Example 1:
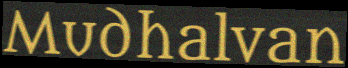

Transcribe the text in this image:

Mudhalvan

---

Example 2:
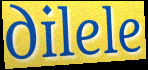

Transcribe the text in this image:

dilele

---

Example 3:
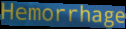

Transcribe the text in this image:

Hemorrhage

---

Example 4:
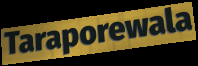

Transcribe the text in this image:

Taraporewala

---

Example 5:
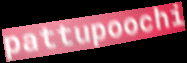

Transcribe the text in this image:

pattupoochi